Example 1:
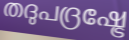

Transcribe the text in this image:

തദുപദ്രഷ്ട്രേ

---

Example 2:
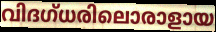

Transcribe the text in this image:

വിദഗ്ധരിലൊരാളായ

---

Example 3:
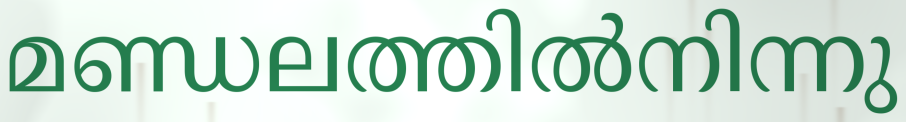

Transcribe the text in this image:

മണ്ഡലത്തിൽനിന്നു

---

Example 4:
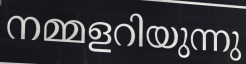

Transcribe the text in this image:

നമ്മളറിയുന്നു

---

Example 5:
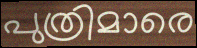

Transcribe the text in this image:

പുത്രിമാരെ